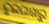
ଦୁଇପାଖରୁ